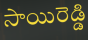
సాయిరెడ్డి